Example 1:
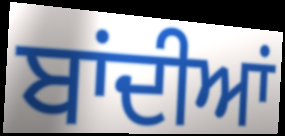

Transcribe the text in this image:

ਬਾਂਦੀਆਂ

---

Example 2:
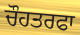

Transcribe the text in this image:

ਚੌਹਤਰਫਾ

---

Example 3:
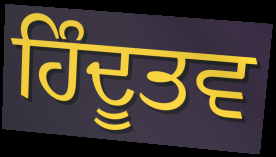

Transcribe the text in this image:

ਹਿੰਦੂਤਵ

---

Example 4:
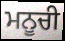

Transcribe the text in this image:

ਮਨੂਚੀ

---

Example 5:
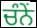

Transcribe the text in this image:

ਚੰਨੇਂ